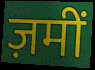
ज़मीं